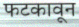
फटकावून